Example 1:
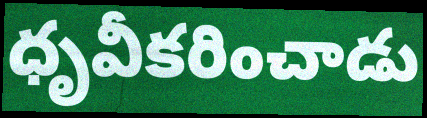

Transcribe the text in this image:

ధృవీకరించాడు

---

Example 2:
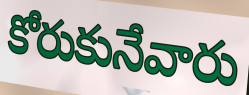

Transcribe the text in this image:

కోరుకునేవారు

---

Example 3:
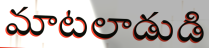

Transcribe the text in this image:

మాటలాడుడి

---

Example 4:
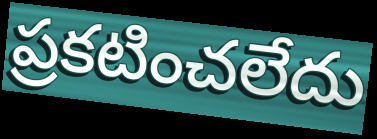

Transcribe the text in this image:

ప్రకటించలేదు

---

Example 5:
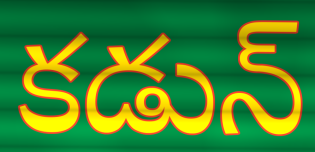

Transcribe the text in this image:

కడున్